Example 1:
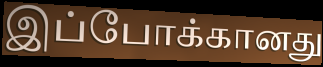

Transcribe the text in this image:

இப்போக்கானது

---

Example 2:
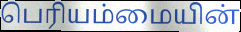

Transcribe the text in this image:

பெரியம்மையின்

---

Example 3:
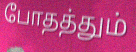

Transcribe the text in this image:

போதத்தும்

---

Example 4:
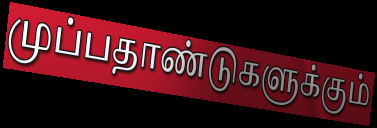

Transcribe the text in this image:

முப்பதாண்டுகளுக்கும்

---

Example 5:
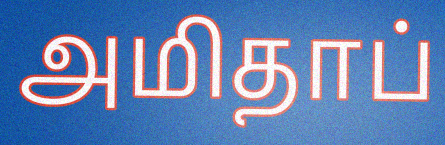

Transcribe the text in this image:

அமிதாப்